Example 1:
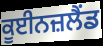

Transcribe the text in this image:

ਕੂਈਨਜ਼ਲੈਂਡ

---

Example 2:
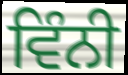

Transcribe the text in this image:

ਵਿੰਨੀ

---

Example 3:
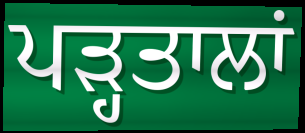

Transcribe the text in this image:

ਪੜ੍ਹਤਾਲਾਂ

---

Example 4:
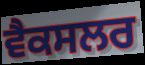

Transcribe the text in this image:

ਵੈਕਸਲਰ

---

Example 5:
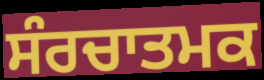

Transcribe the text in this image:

ਸੰਰਚਾਤਮਕ